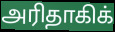
அரிதாகிக்